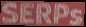
SERPs